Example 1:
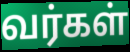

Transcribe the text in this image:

வர்கள்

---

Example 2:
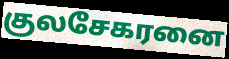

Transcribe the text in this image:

குலசேகரனை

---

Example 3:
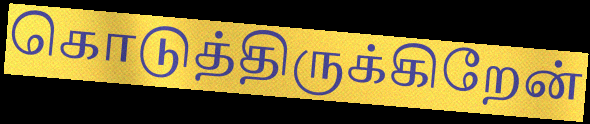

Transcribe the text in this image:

கொடுத்திருக்கிறேன்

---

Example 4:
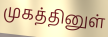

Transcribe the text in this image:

முகத்தினுள்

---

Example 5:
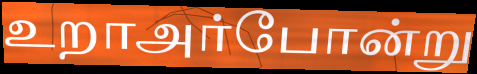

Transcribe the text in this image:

உறாஅர்போன்று